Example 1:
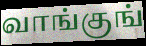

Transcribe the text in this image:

வாங்குங்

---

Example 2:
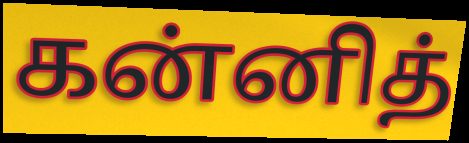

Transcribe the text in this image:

கன்னித்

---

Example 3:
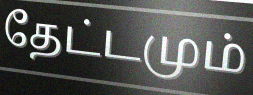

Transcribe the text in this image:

தேட்டமும்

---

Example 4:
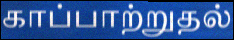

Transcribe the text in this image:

காப்பாற்றுதல்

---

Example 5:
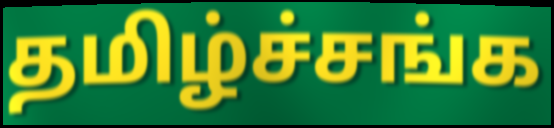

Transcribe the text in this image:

தமிழ்ச்சங்க